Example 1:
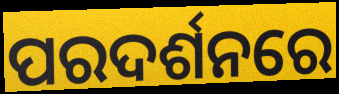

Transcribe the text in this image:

ପରଦର୍ଶନରେ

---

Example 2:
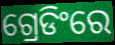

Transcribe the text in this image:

ଗ୍ରେଡିଂରେ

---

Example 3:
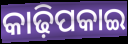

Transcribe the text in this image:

କାଢ଼ିପକାଇ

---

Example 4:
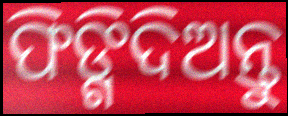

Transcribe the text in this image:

ଫିଙ୍ଗିଦିଅନ୍ତୁ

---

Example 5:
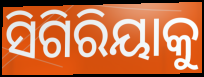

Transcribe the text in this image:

ସିଗିରିୟାକୁ